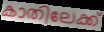
കാതിലേക്ക്